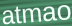
atmao